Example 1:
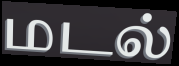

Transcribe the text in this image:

மடல்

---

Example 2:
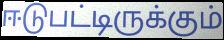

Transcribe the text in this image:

ஈடுபட்டிருக்கும்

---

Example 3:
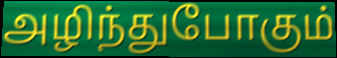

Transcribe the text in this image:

அழிந்துபோகும்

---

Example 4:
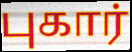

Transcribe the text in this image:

புகார்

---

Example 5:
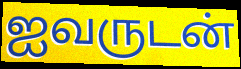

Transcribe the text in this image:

ஐவருடன்